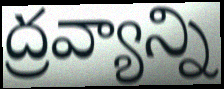
ద్రవ్యాన్ని